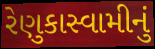
રેણુકાસ્વામીનું